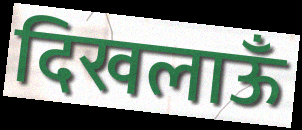
दिखलाऊँ